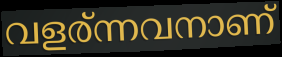
വളര്ന്നവനാണ്